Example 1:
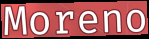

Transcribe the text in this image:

Moreno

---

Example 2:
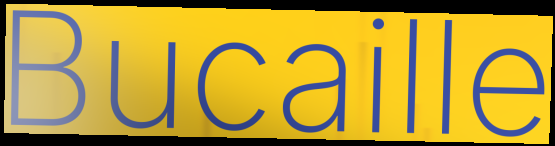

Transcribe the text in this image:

Bucaille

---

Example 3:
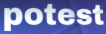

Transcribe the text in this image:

potest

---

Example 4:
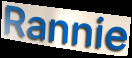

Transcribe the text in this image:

Rannie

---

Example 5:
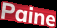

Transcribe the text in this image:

Paine